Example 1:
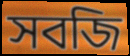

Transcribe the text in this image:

সবজি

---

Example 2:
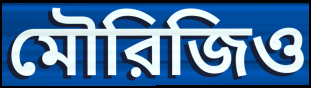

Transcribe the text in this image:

মৌরিজিও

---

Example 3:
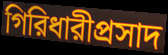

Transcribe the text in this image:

গিরিধারীপ্রসাদ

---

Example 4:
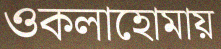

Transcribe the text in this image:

ওকলাহোমায়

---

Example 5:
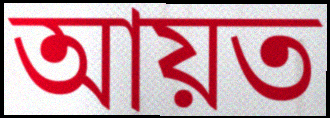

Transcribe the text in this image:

আয়ত